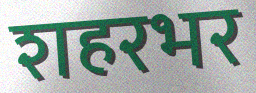
शहरभर